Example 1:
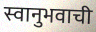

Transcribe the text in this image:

स्वानुभवाची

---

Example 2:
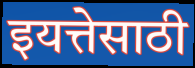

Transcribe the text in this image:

इयत्तेसाठी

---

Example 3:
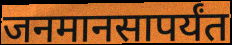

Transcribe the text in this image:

जनमानसापर्यंत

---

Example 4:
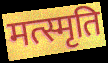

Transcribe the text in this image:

मत्स्मृति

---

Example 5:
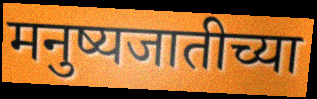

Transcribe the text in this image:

मनुष्यजातीच्या